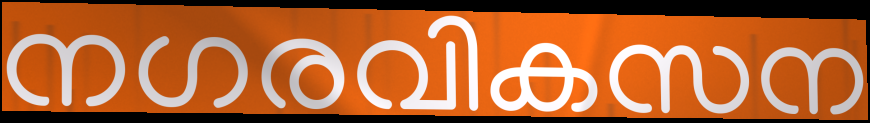
നഗരവികസന